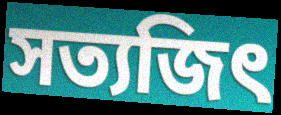
সত্যজিৎ